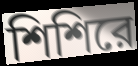
শিশিরে